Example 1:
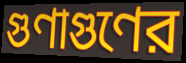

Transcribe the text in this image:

গুণাগুণের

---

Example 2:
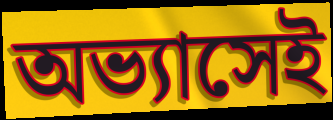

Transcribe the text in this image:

অভ্যাসেই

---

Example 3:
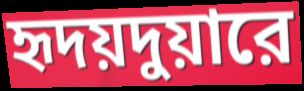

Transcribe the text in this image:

হৃদয়দুয়ারে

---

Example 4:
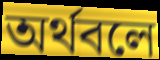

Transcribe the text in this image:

অর্থবলে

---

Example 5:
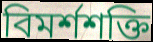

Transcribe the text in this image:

বিমর্শশক্তি